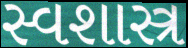
સ્વશાસ્ત્ર